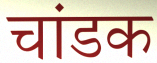
चांडक